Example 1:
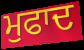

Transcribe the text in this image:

ਮੁਫਾਦ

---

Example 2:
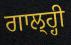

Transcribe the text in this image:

ਗਾਲ੍ਹ੍ਹੀ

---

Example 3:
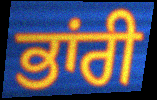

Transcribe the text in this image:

ਭਾਂਰੀ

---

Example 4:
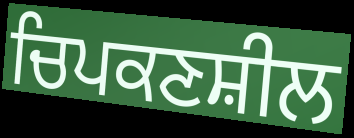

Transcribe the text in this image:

ਚਿਪਕਣਸ਼ੀਲ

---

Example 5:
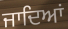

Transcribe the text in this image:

ਜਾਦਿਆਂ